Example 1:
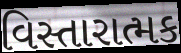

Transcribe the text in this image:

વિસ્તારાત્મક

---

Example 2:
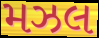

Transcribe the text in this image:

મઝલ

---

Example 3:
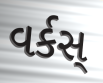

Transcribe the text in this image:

વર્કસ્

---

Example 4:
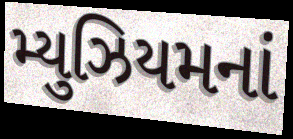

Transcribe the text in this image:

મ્યુઝિયમનાં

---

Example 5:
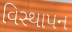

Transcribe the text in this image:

વિસ્થાપન